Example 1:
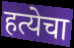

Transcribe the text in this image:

हत्येचा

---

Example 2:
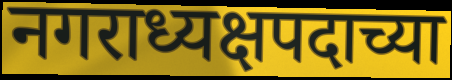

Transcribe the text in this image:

नगराध्यक्षपदाच्या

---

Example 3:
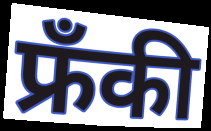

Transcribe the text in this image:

फ्रँकी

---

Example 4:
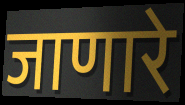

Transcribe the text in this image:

जाणारे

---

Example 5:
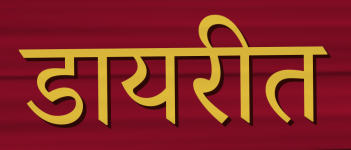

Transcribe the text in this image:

डायरीत